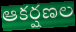
ఆకర్షణల